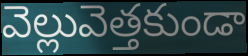
వెల్లువెత్తకుండా